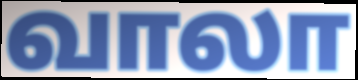
வாலா